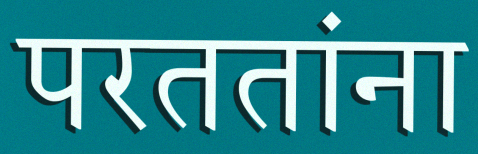
परततांना